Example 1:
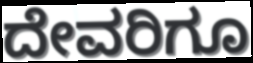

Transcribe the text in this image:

ದೇವರಿಗೂ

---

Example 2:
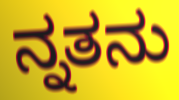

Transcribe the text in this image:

ನ್ನತನು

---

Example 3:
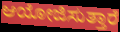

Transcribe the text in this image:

ಆಯೋಜಿಸುತ್ತಾರೆ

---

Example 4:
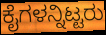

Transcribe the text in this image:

ಕೈಗಳನ್ನಿಟ್ಟರು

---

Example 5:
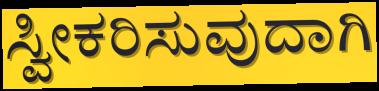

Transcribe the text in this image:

ಸ್ವೀಕರಿಸುವುದಾಗಿ